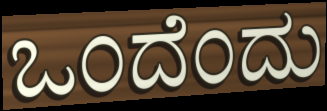
ಒಂದೆಂದು